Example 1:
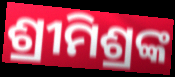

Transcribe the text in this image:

ଶ୍ରୀମିଶ୍ରଙ୍କ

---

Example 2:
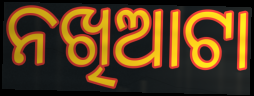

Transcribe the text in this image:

ନଖିଆଟା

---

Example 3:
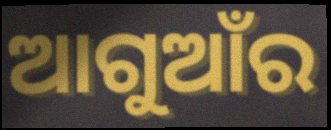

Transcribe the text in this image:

ଆଗୁଆଁର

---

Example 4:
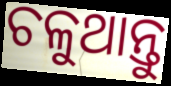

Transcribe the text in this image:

ଚଳୁଥାନ୍ତୁ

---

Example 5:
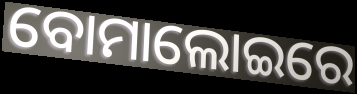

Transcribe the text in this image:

ବୋମାଲୋଇରେ